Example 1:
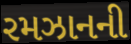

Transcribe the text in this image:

રમઝાનની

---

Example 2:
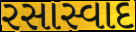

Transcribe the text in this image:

રસાસ્વાદ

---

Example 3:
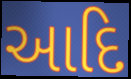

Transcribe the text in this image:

આદિ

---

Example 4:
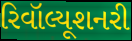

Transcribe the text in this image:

રિવૉલ્યૂશનરી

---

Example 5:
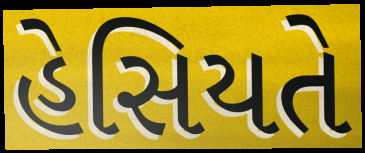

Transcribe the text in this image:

હેસિયતે